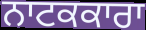
ਨਾਟਕਕਾਰਾ